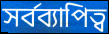
সর্বব্যাপিত্ব